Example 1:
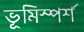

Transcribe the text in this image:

ভূমিস্পর্শ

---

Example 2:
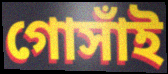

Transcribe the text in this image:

গোসাঁই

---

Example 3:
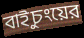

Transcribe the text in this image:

বাইচুংয়ের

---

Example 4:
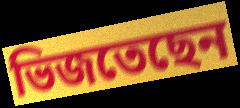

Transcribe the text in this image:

ভিজতেছেন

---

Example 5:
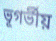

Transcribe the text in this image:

ভূগর্ভীয়